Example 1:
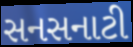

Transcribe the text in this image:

સનસનાટી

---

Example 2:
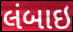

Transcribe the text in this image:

લંબાઇ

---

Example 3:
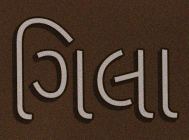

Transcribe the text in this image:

ગિલા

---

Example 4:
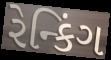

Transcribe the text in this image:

રેન્કિંગ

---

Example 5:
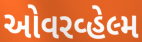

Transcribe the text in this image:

ઓવરવ્હેલ્મ